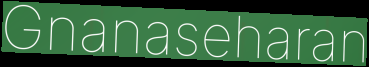
Gnanaseharan